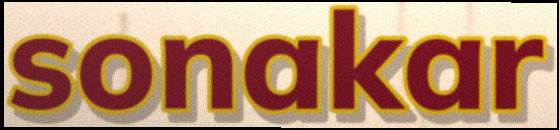
sonakar